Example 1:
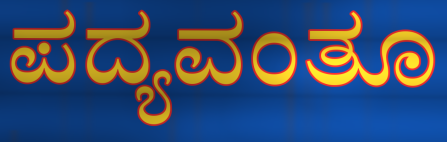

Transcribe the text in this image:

ಪದ್ಯವಂತೂ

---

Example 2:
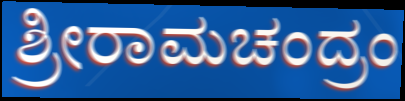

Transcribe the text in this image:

ಶ್ರೀರಾಮಚಂದ್ರಂ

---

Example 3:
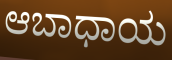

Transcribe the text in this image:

ಆಬಾಧಾಯ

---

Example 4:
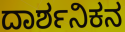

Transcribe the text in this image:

ದಾರ್ಶನಿಕನ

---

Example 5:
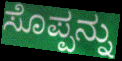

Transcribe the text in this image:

ಸೊಪ್ಪನ್ನು